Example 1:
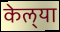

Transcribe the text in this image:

केल्या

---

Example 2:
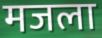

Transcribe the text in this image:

मजला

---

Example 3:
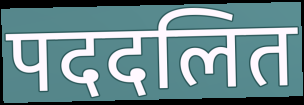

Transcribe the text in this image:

पददलित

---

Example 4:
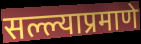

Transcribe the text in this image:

सल्ल्याप्रमाणे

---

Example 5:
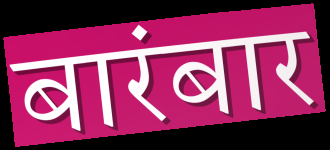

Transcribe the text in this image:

बारंबार